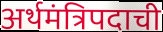
अर्थमंत्रिपदाची